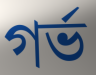
গৰ্ভ